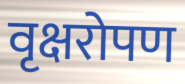
वृक्षरोपण